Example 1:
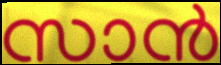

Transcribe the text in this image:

സാൻ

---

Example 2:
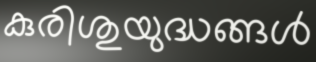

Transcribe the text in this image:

കുരിശുയുദ്ധങ്ങൾ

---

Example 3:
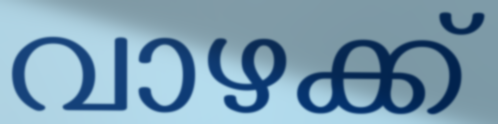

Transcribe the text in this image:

വാഴക്ക്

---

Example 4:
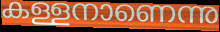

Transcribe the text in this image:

കള്ളനാണെന്നു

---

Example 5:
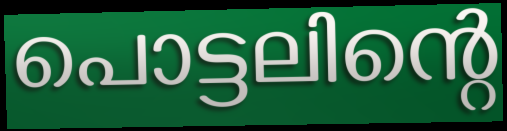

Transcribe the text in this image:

പൊട്ടലിന്റെ